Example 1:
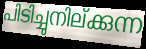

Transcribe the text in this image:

പിടിച്ചുനില്ക്കുന്ന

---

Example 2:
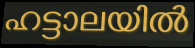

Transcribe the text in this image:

ഹട്ടാലയിൽ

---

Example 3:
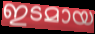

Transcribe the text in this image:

ഇടമായ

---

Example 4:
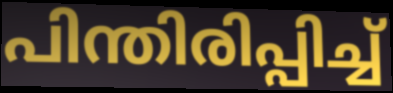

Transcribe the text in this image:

പിന്തിരിപ്പിച്ച്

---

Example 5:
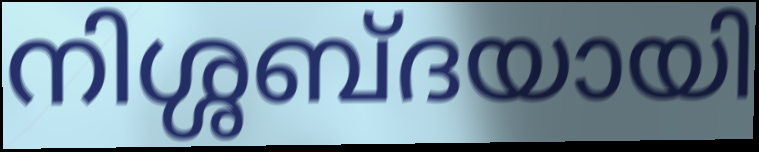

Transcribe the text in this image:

നിശ്ശബ്ദയായി